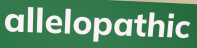
allelopathic